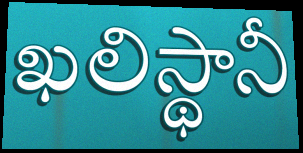
ఖలిస్థానీ